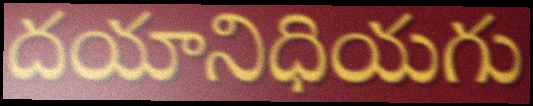
దయానిధియగు